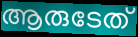
ആരുടേത്